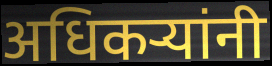
अधिकऱ्यांनी